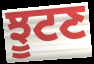
ਝੂਟਣ